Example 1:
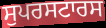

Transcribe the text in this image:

ਸੁਪਰਸਟਾਰਸ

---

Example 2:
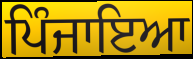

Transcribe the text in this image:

ਪਿੰਜਾਇਆ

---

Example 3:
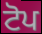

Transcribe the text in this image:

ਟੋਪ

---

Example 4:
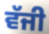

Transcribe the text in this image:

ਵੱਜੀ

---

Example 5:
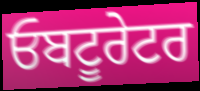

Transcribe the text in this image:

ਓਬਟੂਰੇਟਰ